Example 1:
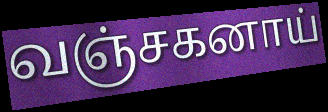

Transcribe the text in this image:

வஞ்சகனாய்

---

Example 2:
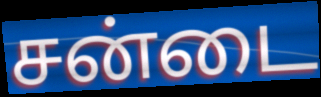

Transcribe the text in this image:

சன்டை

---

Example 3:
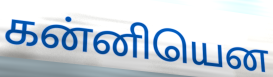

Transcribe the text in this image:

கன்னியென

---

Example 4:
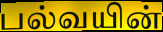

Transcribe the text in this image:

பல்வயின்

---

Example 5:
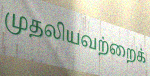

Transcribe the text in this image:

முதலியவற்றைக்